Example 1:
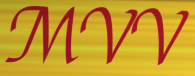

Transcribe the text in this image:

MVV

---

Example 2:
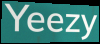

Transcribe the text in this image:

Yeezy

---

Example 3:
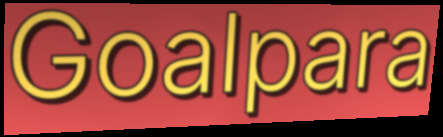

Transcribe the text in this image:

Goalpara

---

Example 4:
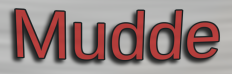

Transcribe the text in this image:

Mudde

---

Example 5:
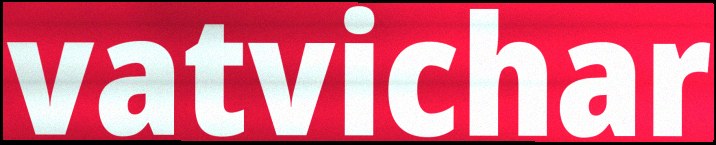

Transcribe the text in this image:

vatvichar